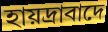
হায়দ্রাবাদে